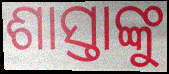
ଶାସ୍ତାଙ୍କୁ